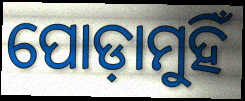
ପୋଡ଼ାମୁହିଁ